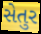
સેતુર